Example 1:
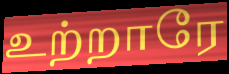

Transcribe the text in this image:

உற்றாரே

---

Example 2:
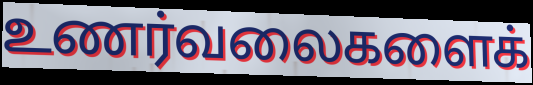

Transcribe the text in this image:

உணர்வலைகளைக்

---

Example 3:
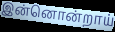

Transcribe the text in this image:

இன்னொன்றாய்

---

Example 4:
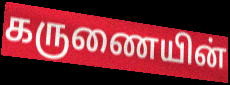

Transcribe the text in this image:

கருணையின்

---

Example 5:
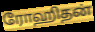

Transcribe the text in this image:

ரோஹிதன்